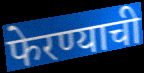
फेरण्याची